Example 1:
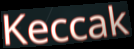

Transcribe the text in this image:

Keccak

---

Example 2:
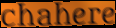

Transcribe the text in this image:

chahere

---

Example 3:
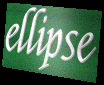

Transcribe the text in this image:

ellipse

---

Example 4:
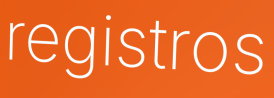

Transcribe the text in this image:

registros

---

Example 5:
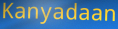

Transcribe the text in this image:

Kanyadaan